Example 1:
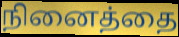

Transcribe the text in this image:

நினைத்தை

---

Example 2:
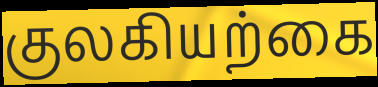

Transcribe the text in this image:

குலகியற்கை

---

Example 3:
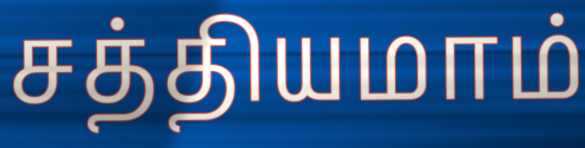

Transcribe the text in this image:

சத்தியமாம்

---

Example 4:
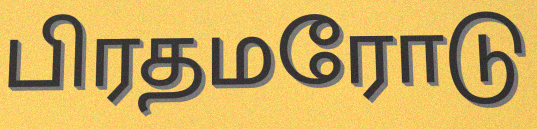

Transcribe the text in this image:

பிரதமரோடு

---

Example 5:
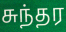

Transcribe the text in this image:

சுந்தர